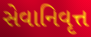
સેવાનિવૃત્ત